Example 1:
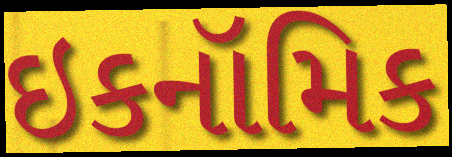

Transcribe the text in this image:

ઇકનૉમિક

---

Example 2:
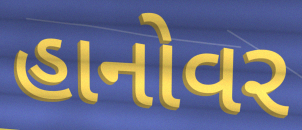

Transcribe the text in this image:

હાનોવર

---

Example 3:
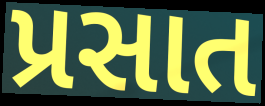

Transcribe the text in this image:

પ્રસાત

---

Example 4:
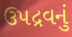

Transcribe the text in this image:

ઉપદ્રવનું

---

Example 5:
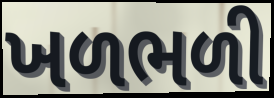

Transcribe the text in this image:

ખળભળી